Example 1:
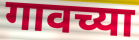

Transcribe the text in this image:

गावच्या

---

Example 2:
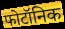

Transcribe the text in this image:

फोटॉनिक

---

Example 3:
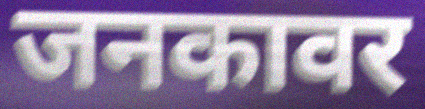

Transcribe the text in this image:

जनकावर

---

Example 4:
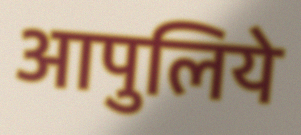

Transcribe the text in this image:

आपुलिये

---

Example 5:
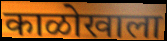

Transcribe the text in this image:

काळोखाला